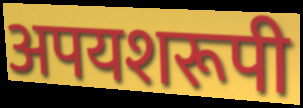
अपयशरूपी